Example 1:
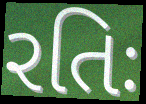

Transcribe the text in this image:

રતિઃ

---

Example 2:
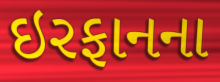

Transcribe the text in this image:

ઇરફાનના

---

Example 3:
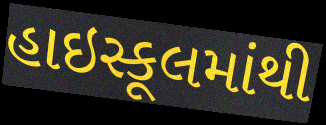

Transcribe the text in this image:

હાઇસ્કૂલમાંથી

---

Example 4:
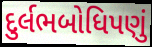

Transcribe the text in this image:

દુર્લભબોધિપણું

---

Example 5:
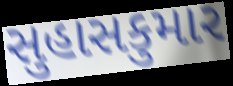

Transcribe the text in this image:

સુહાસકુમાર